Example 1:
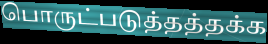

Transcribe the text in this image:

பொருட்படுத்தத்தக்க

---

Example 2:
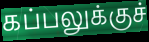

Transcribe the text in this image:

கப்பலுக்குச்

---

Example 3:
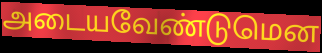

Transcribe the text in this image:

அடையவேண்டுமென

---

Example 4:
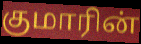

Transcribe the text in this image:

குமாரின்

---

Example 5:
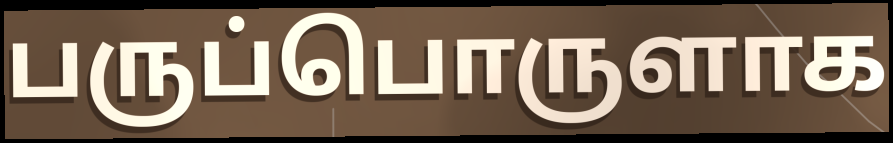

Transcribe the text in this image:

பருப்பொருளாக